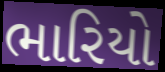
ભારિયો